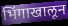
भिंगाखालून